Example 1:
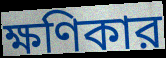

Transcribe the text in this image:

ক্ষণিকার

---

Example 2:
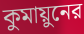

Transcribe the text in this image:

কুমায়ুনের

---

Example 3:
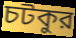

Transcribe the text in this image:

চটকুর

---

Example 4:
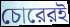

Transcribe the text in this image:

চোরেরই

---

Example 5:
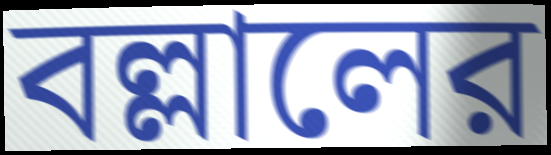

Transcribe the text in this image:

বল্লালের